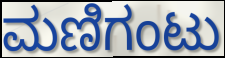
ಮಣಿಗಂಟು